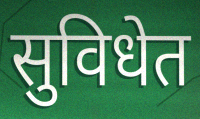
सुविधेत